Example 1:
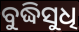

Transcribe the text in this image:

ବୁଦ୍ଧିସୁଧି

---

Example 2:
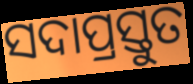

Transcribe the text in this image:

ସଦାପ୍ରସ୍ତୁତ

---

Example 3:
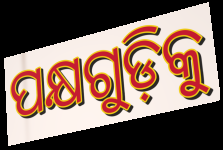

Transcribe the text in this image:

ପକ୍ଷଗୁଡ଼ିକୁ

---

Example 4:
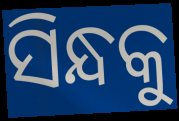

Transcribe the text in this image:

ସିନ୍ଧକୁ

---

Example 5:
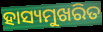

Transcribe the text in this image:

ହାସ୍ୟମୁଖରିତ